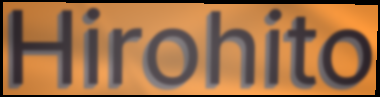
Hirohito